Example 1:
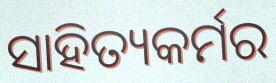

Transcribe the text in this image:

ସାହିତ୍ୟକର୍ମର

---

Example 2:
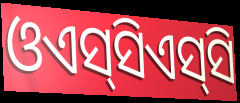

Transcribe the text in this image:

ଓଏସ୍‌ସିଏସ୍‌ସି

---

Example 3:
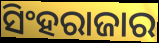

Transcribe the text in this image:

ସିଂହରାଜାର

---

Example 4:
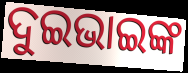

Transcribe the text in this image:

ଦୁଇଭାଇଙ୍କ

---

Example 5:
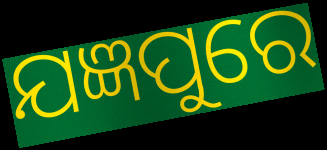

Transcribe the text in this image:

ଯଜ୍ଞପୁରେ